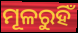
ମୂଳରୁହିଁ